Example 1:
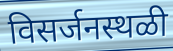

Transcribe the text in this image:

विसर्जनस्थळी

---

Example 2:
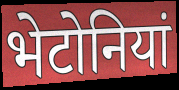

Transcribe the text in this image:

भेटोनियां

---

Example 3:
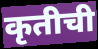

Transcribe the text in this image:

कृतीची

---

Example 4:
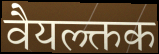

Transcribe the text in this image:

वैयल्क्तक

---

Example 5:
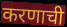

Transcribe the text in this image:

करणाची